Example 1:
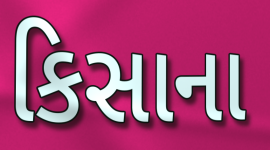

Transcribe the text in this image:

કિસાના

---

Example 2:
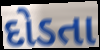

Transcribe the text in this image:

દોડતા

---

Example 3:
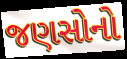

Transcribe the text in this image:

જણસોનો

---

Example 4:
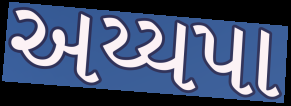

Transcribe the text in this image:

અય્યપા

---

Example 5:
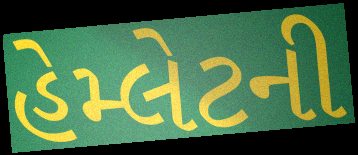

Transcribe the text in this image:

હેમ્લેટની